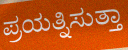
ಪ್ರಯತ್ನಿಸುತ್ತಾ